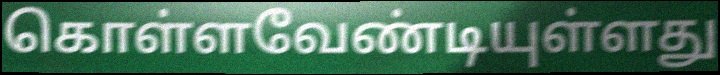
கொள்ளவேண்டியுள்ளது